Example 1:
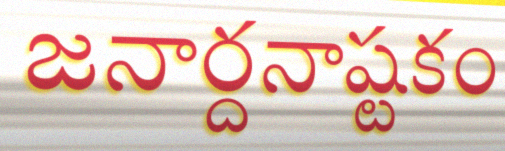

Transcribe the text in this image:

జనార్దనాష్టకం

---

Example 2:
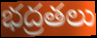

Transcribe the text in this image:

భద్రతలు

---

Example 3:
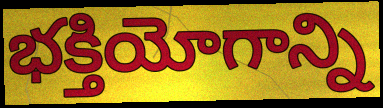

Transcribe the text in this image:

భక్తియోగాన్ని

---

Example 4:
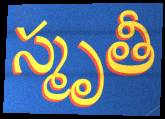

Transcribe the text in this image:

స్మృతీ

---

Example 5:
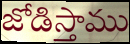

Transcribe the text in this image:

జోడిస్తాము